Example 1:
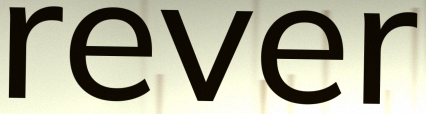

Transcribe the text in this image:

rever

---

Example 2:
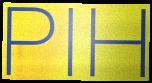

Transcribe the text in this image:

PIH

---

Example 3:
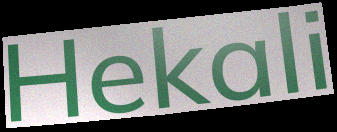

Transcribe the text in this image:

Hekali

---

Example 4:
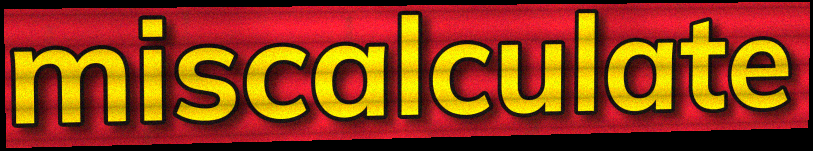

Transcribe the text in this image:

miscalculate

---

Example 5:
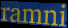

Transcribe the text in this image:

ramni